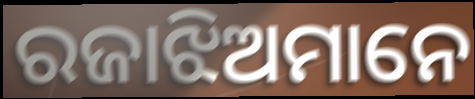
ରଜାଝିଅମାନେ